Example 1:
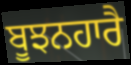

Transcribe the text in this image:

ਬੂਝਨਹਾਰੈ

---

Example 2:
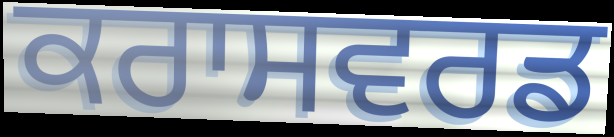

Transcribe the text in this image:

ਕਰਾਸਵਰਡ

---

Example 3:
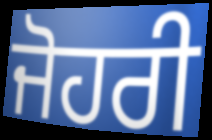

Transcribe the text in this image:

ਜੋਹਰੀ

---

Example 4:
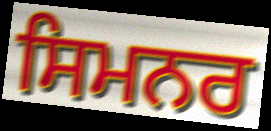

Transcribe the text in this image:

ਸਿਮਨਰ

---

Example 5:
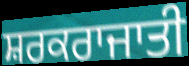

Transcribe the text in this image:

ਸ਼ਰਕਰਾਜਾਤੀ